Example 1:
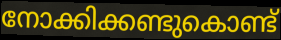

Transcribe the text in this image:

നോക്കിക്കണ്ടുകൊണ്ട്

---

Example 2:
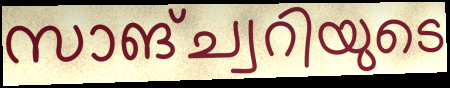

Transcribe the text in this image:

സാങ്ച്വറിയുടെ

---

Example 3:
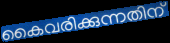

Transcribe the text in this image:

കൈവരിക്കുന്നതിന്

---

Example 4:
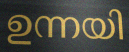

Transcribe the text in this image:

ഉന്നയി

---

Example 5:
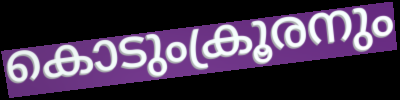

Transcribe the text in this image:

കൊടുംക്രൂരനും